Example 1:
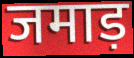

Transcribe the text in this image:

जमाड़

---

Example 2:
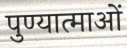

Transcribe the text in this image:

पुण्यात्माओं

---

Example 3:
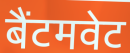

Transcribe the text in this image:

बैंटमवेट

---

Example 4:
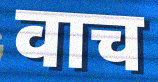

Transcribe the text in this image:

वाच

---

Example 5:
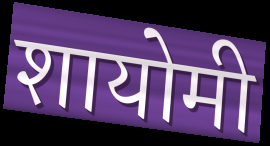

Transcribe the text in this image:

शायोमी